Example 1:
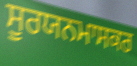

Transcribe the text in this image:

ਸੂਰਯਨਮਾਸਕਰ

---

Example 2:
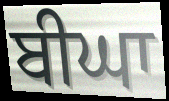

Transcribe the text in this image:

ਬੀਘਾ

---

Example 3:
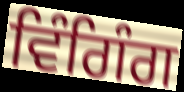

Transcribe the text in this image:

ਵਿੰਗਿੰਗ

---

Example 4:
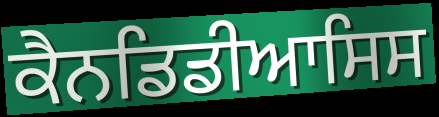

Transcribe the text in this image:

ਕੈਨਡਿਡੀਆਸਿਸ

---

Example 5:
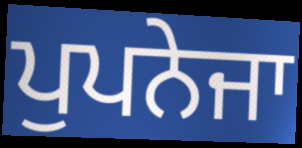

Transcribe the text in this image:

ਪੁਪਨੇਜਾ